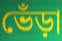
ভেঁড়া